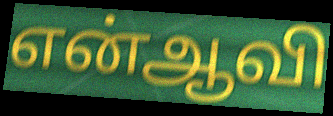
என்ஆவி